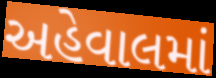
અહેવાલમાં